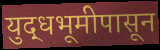
युद्धभूमीपासून